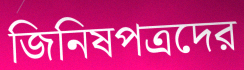
জিনিষপত্রদের